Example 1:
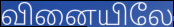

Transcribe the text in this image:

வினையிலே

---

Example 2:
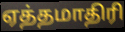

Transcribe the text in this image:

ஏத்தமாதிரி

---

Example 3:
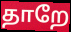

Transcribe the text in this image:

தாறே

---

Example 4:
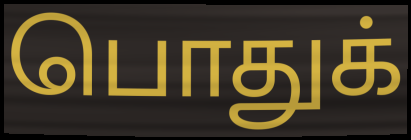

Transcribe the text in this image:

பொதுக்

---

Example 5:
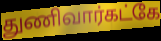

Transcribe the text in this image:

துணிவார்கட்கே